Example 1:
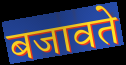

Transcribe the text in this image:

बजावते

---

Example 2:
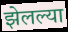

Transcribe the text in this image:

झेलल्या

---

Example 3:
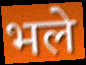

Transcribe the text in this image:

भले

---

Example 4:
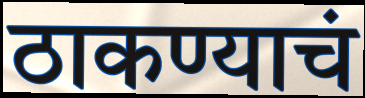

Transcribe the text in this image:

ठाकण्याचं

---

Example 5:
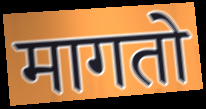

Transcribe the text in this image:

मागतो